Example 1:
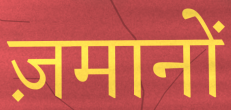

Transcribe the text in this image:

ज़मानों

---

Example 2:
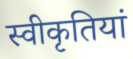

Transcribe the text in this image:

स्वीकृतियां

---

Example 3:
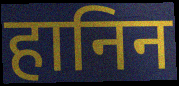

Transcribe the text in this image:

हानिन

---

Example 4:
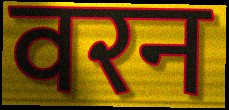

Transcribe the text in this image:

वरन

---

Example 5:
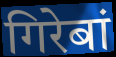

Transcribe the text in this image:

गिरेबां